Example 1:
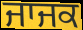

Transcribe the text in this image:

ਜਾਜਕ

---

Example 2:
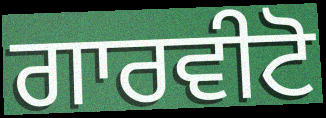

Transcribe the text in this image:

ਗਾਰਵੀਟੋ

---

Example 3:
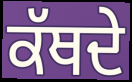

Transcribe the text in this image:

ਕੱਥਦੇ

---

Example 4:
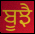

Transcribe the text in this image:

ਬੂਝੈ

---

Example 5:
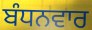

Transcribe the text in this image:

ਬੰਧਨਵਾਰ